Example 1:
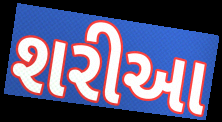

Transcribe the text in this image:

શરીઆ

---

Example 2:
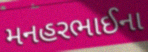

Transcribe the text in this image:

મનહરભાઈના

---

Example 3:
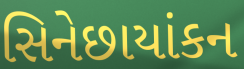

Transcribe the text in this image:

સિનેછાયાંકન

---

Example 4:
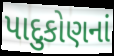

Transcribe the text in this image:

પાદુકોણનાં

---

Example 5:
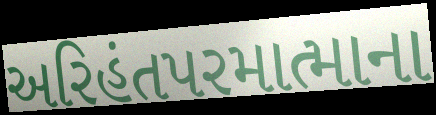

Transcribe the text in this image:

અરિહંતપરમાત્માના